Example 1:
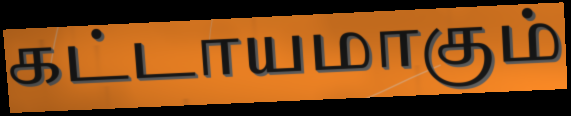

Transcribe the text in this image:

கட்டாயமாகும்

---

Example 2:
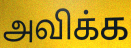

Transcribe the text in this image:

அவிக்க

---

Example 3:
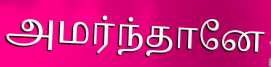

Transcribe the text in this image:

அமர்ந்தானே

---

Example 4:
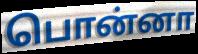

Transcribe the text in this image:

பொன்னா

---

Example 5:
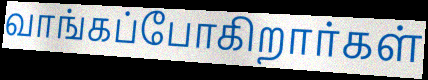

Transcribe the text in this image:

வாங்கப்போகிறார்கள்